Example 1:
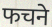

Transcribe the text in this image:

फचने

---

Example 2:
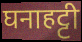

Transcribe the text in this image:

घनाहट्टी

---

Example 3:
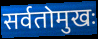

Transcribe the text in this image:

सर्वतोमुखः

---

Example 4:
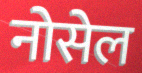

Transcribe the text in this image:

नोसेल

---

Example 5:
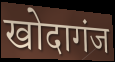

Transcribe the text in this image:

खोदागंज